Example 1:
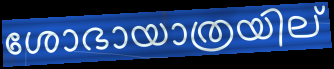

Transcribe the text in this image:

ശോഭായാത്രയില്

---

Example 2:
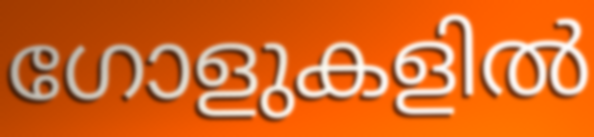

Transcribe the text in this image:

ഗോളുകളിൽ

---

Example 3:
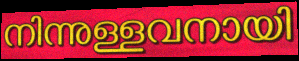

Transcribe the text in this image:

നിന്നുള്ളവനായി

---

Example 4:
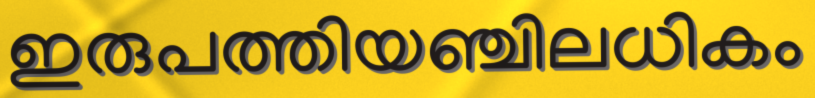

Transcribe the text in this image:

ഇരുപത്തിയഞ്ചിലധികം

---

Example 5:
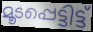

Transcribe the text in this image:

മൂടപ്പെട്ടിട്ട്